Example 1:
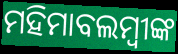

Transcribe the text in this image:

ମହିମାବଲମ୍ବୀଙ୍କ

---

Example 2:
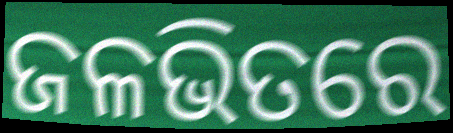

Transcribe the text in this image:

ଜଳଭିତରେ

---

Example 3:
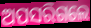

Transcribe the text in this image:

ଅପସରିଗଲେ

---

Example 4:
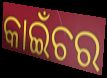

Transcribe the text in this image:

କାଇଁଚର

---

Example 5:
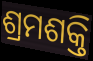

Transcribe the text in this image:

ଶ୍ରମଶକ୍ତି